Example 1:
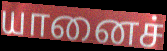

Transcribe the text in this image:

யானைச்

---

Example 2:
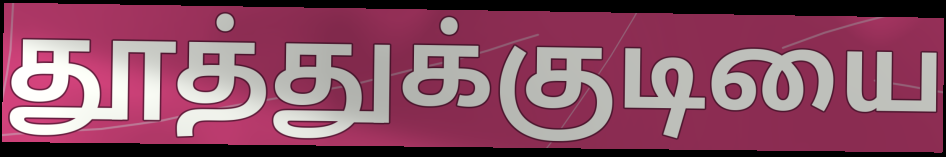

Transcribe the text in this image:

தூத்துக்குடியை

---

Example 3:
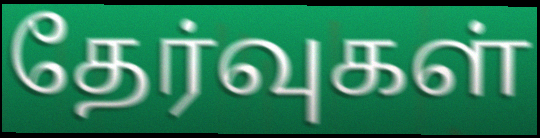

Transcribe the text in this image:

தேர்வுகள்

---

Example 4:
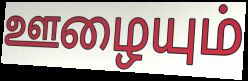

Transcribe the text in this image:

ஊழையும்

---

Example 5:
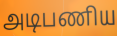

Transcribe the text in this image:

அடிபணிய